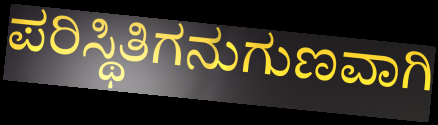
ಪರಿಸ್ಥಿತಿಗನುಗುಣವಾಗಿ